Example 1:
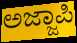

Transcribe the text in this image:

ಅಜ್ಜಾಪಿ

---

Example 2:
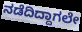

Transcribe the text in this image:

ನಡೆದಿದ್ದಾಗಲೇ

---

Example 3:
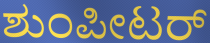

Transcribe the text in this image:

ಶುಂಪೀಟರ್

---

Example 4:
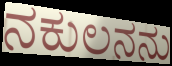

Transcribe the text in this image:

ನಕುಲನನು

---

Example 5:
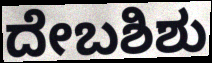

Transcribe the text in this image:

ದೇಬಶಿಶು